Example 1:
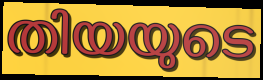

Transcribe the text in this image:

തിയയുടെ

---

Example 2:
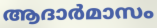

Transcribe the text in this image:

ആദാർമാസം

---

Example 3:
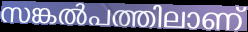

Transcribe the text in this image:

സങ്കൽപത്തിലാണ്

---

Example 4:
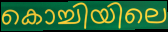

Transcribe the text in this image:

കൊച്ചിയിലെ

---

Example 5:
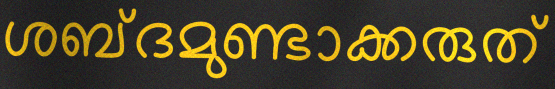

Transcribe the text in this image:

ശബ്ദമുണ്ടാക്കരുത്